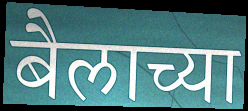
बैलाच्या